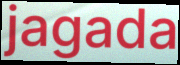
jagada